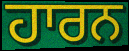
ਹਾਰਨ